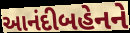
આનંદીબહેનને